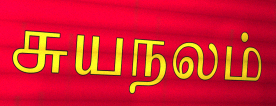
சுயநலம்